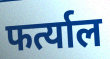
फर्त्याल